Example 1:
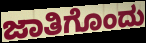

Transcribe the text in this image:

ಜಾತಿಗೊಂದು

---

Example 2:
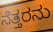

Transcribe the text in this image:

ನೆತ್ತರನು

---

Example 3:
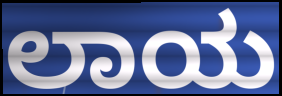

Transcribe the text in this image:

ಲಾಯ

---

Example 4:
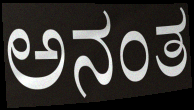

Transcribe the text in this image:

ಅನಂತ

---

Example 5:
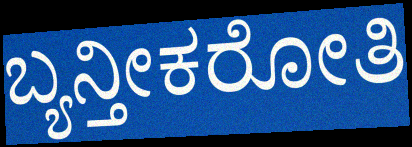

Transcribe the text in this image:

ಬ್ಯನ್ತೀಕರೋತಿ